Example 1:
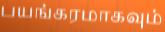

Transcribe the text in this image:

பயங்கரமாகவும்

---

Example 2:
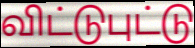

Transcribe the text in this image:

விட்டுபுட்டு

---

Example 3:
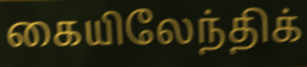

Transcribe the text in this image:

கையிலேந்திக்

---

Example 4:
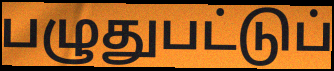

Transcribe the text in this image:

பழுதுபட்டுப்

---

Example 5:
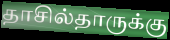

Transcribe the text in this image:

தாசில்தாருக்கு